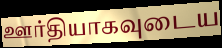
ஊர்தியாகவுடைய